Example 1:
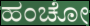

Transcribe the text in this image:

ಹಂಚೋ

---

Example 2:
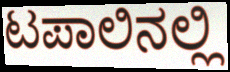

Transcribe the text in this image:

ಟಪಾಲಿನಲ್ಲಿ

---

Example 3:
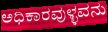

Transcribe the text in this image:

ಅಧಿಕಾರವುಳ್ಳವನು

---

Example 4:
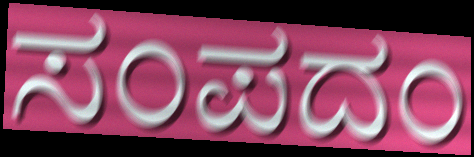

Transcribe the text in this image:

ಸಂಪದಂ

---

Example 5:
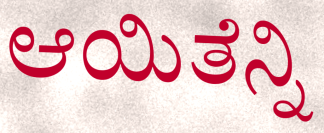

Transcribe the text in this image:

ಆಯಿತೆನ್ನಿ